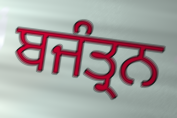
ਬਜੰਤ੍ਰਨ